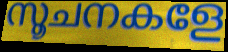
സൂചനകളേ